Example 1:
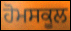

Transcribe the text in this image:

ਹੋਮਸਕੂਲ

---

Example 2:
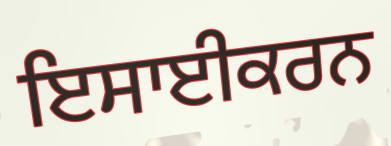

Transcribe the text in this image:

ਇਸਾਈਕਰਨ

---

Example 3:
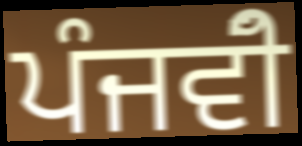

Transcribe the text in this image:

ਪੰਜਵੀਁ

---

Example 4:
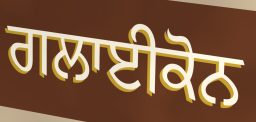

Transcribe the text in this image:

ਗਲਾਈਕੋਨ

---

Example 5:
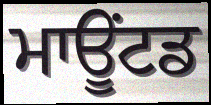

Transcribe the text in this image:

ਮਾਊਂਟਡ